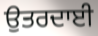
ਉਤਰਦਾਈ